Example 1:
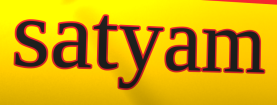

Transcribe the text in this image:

satyam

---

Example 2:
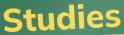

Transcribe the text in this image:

Studies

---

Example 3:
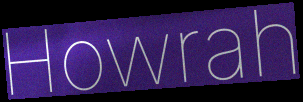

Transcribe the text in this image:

Howrah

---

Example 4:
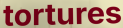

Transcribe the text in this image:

tortures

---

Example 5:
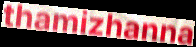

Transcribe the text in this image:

thamizhanna